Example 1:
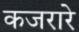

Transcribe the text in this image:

कजरारे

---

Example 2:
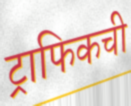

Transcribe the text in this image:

ट्राफिकची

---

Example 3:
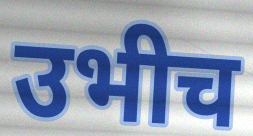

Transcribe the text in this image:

उभीच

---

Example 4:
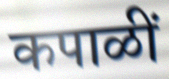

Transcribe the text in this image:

कपाळीं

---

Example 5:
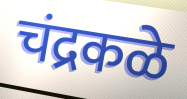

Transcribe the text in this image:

चंद्रकळे